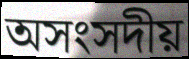
অসংসদীয়